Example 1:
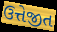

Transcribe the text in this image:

ઉત્તેજીત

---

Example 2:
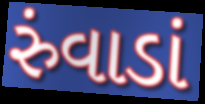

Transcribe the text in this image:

રુંવાડાં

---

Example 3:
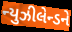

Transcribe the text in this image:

ન્યુઝીલેન્ડને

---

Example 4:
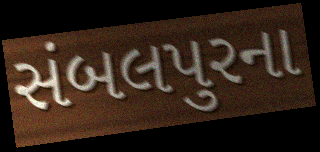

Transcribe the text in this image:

સંબલપુરના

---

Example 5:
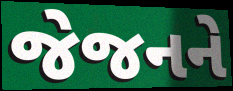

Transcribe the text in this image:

જેજનને